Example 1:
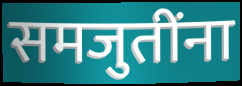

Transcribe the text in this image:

समजुतींना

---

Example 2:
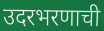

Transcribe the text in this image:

उदरभरणाची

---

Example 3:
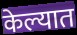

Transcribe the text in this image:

केल्यात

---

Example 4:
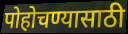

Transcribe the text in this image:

पोहोचण्यासाठी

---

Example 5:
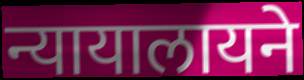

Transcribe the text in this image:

न्यायालायने